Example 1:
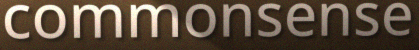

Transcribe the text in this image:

commonsense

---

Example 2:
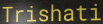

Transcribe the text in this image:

Trishati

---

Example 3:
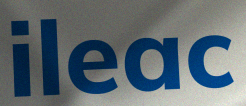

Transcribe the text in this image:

ileac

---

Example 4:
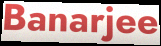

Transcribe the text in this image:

Banarjee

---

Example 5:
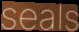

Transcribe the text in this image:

seals